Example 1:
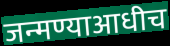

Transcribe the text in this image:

जन्मण्याआधीच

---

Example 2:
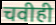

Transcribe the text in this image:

चवीही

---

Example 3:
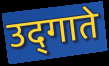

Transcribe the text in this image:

उद्‌गाते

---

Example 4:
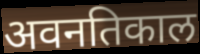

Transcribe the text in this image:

अवनतिकाल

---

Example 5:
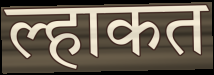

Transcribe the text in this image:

ल्हाकत